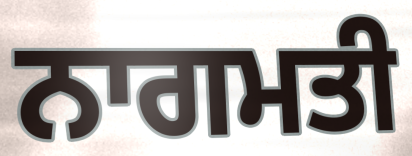
ਨਾਗਮਤੀ